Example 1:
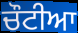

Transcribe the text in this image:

ਚੌਟੀਆ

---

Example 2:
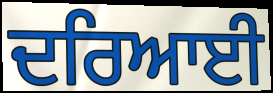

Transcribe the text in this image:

ਦਰਿਆਈ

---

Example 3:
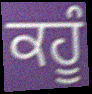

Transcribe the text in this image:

ਕਹੂੰ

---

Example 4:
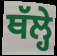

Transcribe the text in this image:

ਥੱਲ੍ਹੇ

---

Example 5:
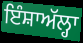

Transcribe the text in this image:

ਇੰਸ਼ਾਅੱਲ੍ਹਾ